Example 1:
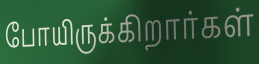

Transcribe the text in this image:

போயிருக்கிறார்கள்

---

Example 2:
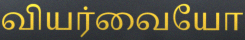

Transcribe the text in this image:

வியர்வையோ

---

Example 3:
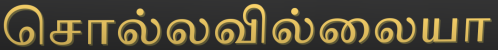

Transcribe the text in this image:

சொல்லவில்லையா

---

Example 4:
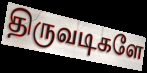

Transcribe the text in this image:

திருவடிகளே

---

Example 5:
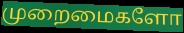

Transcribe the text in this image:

முறைமைகளோ